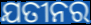
ଯତୀନର